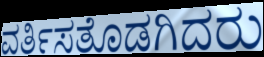
ವರ್ತಿಸತೊಡಗಿದರು